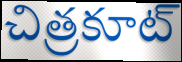
చిత్రకూట్